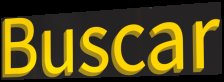
Buscar